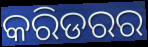
କରିଡରର